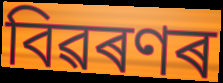
বিৱৰণৰ